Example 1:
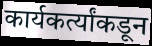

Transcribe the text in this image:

कार्यकर्त्यांकडून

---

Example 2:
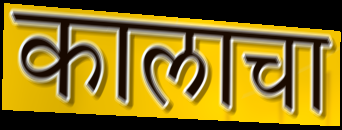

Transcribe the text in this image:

कालाचा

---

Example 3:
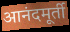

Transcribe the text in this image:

आनंदमूर्ती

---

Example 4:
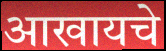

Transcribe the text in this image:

आखायचे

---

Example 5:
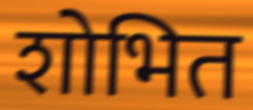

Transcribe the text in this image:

शोभित